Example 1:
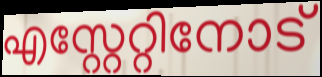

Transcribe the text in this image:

എസ്റ്റേറ്റിനോട്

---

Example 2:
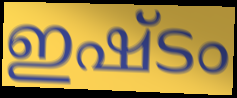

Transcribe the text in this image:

ഇഷ്ടം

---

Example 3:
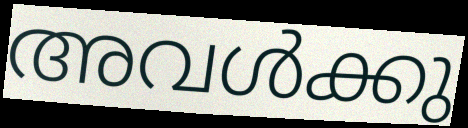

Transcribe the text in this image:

അവൾക്കു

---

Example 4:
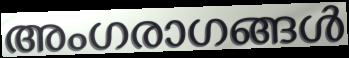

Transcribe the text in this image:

അംഗരാഗങ്ങൾ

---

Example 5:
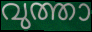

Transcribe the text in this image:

വുത്താ